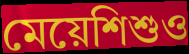
মেয়েশিশুও